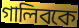
গালিবকে